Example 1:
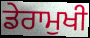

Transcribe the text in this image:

ਡੇਰਾਮੁਖੀ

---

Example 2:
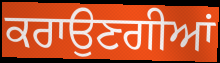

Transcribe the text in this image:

ਕਰਾਉਣਗੀਆਂ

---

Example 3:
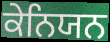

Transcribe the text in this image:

ਕੇਨਿਯਨ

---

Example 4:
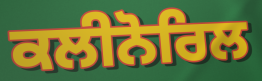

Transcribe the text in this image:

ਕਲੀਨੋਰਿਲ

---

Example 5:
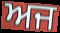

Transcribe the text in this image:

ਅਜ